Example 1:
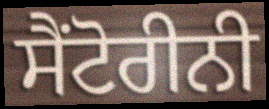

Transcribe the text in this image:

ਸੈਂਟੋਰੀਨੀ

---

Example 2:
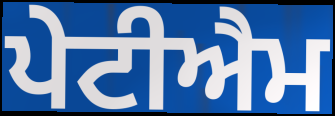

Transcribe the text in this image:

ਪੇਟੀਐਮ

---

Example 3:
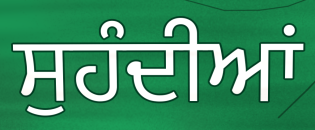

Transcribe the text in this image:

ਸੁਹੰਦੀਆਂ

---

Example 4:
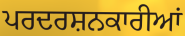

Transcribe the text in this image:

ਪਰਦਰਸ਼ਨਕਾਰੀਆਂ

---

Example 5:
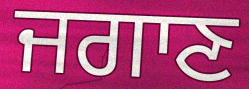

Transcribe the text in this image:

ਜਗਾਣ